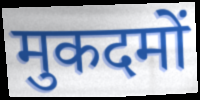
मुकदमों